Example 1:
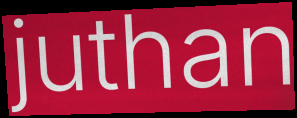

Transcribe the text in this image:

juthan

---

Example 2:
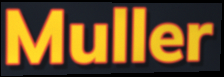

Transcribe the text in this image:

Muller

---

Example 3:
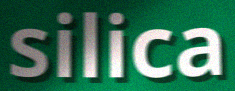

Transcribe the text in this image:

silica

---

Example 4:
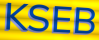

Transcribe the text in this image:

KSEB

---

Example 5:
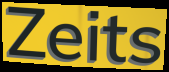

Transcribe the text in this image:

Zeits